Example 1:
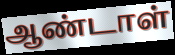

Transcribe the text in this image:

ஆண்டாள்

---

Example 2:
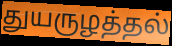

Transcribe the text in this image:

துயருழத்தல்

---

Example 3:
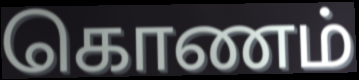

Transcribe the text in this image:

கொணம்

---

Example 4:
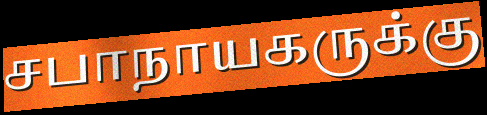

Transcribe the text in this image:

சபாநாயகருக்கு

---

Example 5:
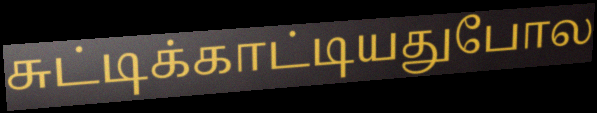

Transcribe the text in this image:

சுட்டிக்காட்டியதுபோல